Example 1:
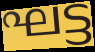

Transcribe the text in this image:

ഘട്ട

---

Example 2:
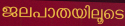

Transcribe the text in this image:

ജലപാതയിലൂടെ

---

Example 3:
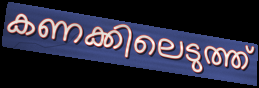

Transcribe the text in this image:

കണക്കിലെടുത്ത്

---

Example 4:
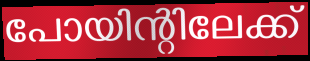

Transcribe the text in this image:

പോയിന്റിലേക്ക്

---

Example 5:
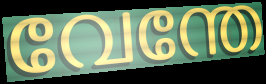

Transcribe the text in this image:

വേന്തേ